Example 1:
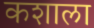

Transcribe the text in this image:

कशाला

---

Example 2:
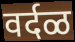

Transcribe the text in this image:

वर्दळ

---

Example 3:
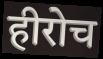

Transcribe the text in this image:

हीरोच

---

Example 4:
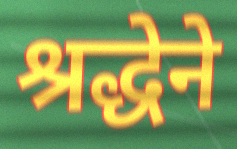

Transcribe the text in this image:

श्रद्धेने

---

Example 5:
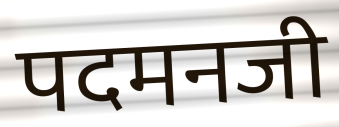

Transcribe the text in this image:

पदमनजी